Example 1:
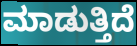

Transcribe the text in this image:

ಮಾಡುತ್ತಿದೆ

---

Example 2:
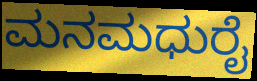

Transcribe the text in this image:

ಮನಮಧುರೈ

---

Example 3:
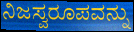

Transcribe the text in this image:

ನಿಜಸ್ವರೂಪವನ್ನು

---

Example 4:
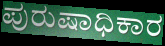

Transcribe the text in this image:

ಪುರುಷಾಧಿಕಾರ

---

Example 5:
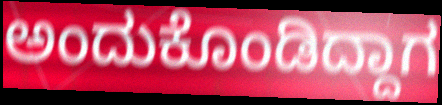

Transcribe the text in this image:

ಅಂದುಕೊಂಡಿದ್ದಾಗ